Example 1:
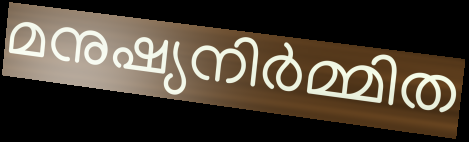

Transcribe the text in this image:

മനുഷ്യനിർമ്മിത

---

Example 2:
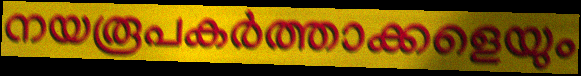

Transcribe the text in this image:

നയരൂപകർത്താക്കളെയും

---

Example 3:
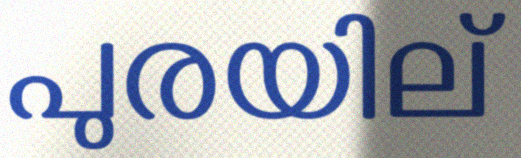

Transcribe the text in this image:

പുരയില്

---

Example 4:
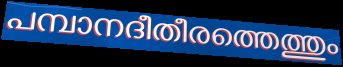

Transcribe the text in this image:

പമ്പാനദീതീരത്തെത്തും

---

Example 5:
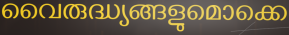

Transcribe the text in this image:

വൈരുദ്ധ്യങ്ങളുമൊക്കെ